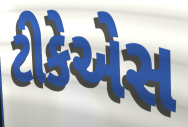
ટીકેએસ